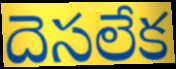
దెసలేక